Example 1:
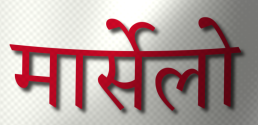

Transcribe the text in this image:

मार्सेलो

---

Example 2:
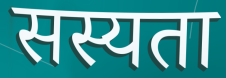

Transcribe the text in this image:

सस्यता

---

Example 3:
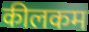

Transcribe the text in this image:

कीलकम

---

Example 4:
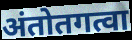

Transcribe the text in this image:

अंतोतगत्वा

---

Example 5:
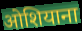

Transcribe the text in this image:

ओशियाना